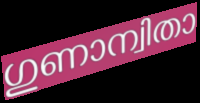
ഗുണാന്വിതാ